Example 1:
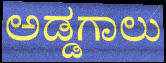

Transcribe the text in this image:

ಅಡ್ಡಗಾಲು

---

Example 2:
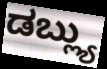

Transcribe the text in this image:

ಡಬ್ಲ್ಯು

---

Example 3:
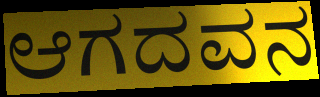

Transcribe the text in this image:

ಆಗದವನ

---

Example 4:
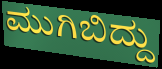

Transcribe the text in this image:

ಮುಗಿಬಿದ್ದು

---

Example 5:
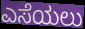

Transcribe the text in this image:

ಎಸೆಯಲು